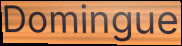
Domingue